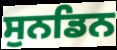
ਸੁਨਡਿਨ